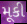
મૂકી